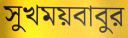
সুখময়বাবুর